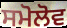
ਸਮੋਲੋਵ